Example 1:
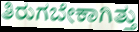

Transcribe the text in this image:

ತಿರುಗಬೇಕಾಗಿತ್ತು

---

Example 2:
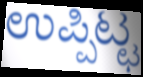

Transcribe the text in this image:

ಉಪ್ಪಿಟ್ಟ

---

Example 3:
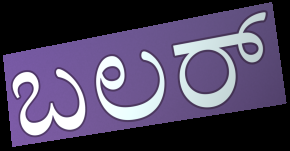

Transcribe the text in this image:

ಬಲರ್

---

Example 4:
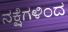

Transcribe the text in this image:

ನಕ್ಷೆಗಳಿಂದ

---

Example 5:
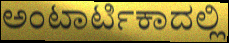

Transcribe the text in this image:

ಅಂಟಾರ್ಟಿಕಾದಲ್ಲಿ